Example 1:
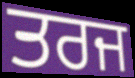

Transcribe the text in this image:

ਤਰਜ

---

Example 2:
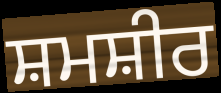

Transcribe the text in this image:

ਸ਼ਮਸ਼ੀਰ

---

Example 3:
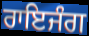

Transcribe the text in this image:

ਰਾਇਜੰਗ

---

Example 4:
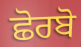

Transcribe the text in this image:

ਛੋਰਬੋ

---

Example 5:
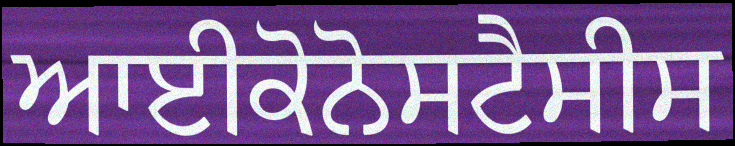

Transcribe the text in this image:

ਆਈਕੋਨੋਸਟੈਸੀਸ